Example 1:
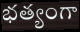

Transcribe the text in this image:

భత్యంగా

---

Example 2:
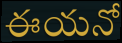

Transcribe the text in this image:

ఈయనో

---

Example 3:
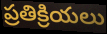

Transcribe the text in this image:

ప్రతిక్రియలు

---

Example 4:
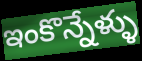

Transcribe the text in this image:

ఇంకొన్నేళ్ళు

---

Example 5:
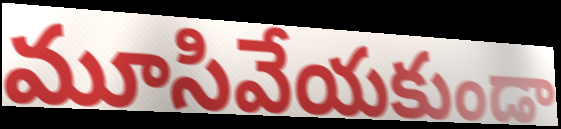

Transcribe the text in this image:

మూసివేయకుండా